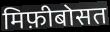
मिफ़ीबोसत